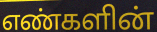
எண்களின்